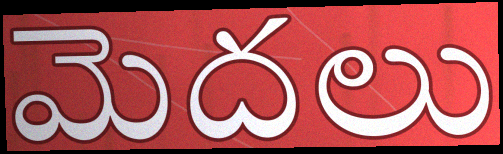
మెదలు